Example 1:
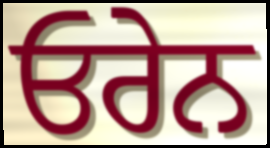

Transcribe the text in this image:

ਓਰੇਨ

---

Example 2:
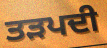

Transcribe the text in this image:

ਤੜਪਦੀ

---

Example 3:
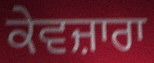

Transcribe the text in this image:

ਕੇਵਜ਼ਾਰਾ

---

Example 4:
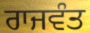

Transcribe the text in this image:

ਰਾਜਵੰਤ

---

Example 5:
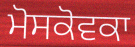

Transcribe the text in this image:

ਮੋਸਕੋਵਕਾ